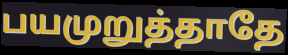
பயமுறுத்தாதே